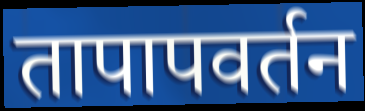
तापापवर्तन